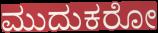
ಮುದುಕರೋ